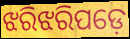
ଝରିଝରିପଡ଼େ